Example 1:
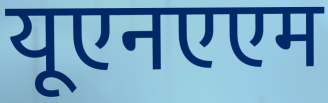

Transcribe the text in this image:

यूएनएएम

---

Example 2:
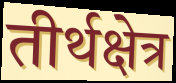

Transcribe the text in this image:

तीर्थक्षेत्र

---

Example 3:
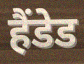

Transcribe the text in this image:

हैंडेड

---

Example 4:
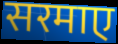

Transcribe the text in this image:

सरमाए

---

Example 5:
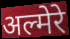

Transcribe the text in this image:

अल्मेरे